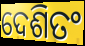
ଦେଶିତଂ